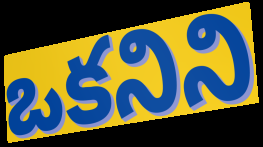
ఒకనిని